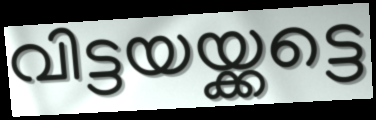
വിട്ടയയ്ക്കട്ടെ